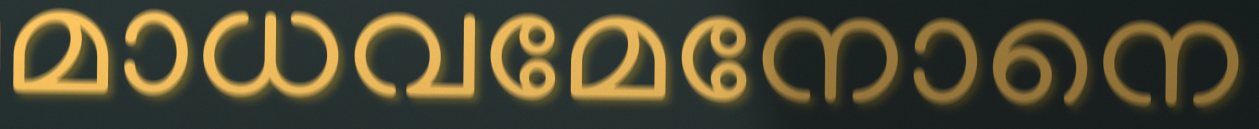
മാധവമേനോനെ